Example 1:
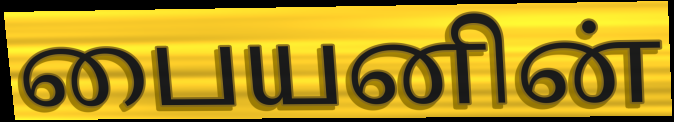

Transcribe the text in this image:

பையனின்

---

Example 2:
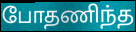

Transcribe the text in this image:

போதணிந்த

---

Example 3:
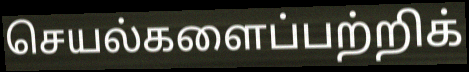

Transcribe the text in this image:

செயல்களைப்பற்றிக்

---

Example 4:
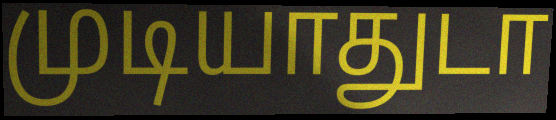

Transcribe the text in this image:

முடியாதுடா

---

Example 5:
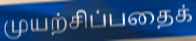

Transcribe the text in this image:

முயற்சிப்பதைக்